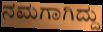
ನಮಗಾಗಿದ್ದು